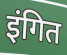
इंगित